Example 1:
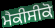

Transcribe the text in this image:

ਮੈਕੀਸੀਕੋ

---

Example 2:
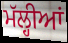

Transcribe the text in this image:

ਮੱਲ੍ਹੀਆਂ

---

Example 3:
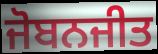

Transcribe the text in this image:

ਜੋਬਨਜੀਤ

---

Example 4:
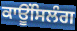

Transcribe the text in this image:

ਕਾਊਂਸਿਲੰਗ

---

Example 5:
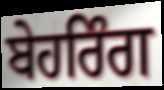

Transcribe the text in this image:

ਬੇਹਰਿੰਗ